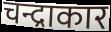
चन्द्राकार